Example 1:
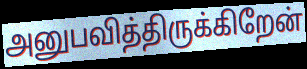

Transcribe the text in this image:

அனுபவித்திருக்கிறேன்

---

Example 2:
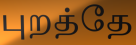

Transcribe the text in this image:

புறத்தே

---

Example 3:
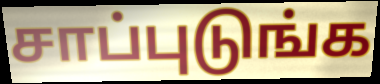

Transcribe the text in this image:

சாப்புடுங்க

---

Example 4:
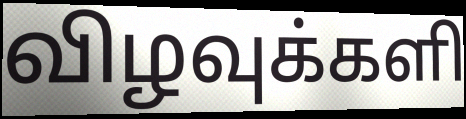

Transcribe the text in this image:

விழவுக்களி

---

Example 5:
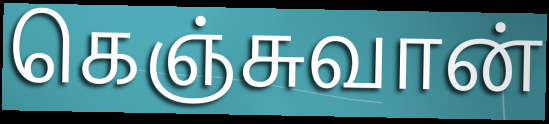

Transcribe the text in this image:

கெஞ்சுவான்